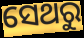
ସେଥରୁ